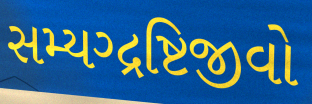
સમ્યગ્દ્રષ્ટિજીવો